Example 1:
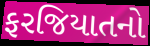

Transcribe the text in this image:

ફરજિયાતનો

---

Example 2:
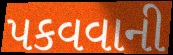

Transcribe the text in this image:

પકવવાની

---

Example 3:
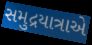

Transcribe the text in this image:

સમુદ્રયાત્રાએ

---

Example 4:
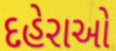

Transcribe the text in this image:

દહેરાઓ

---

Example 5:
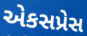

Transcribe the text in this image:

એકસપ્રેસ